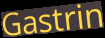
Gastrin